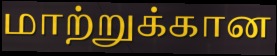
மாற்றுக்கான